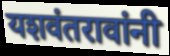
यशवंतरावांनी